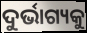
ଦୁର୍ଭାଗ୍ୟକୁ